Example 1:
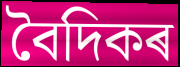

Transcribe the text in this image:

বৈদিকৰ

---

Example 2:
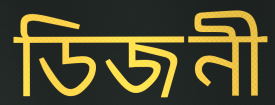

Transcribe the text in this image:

ডিজনী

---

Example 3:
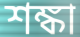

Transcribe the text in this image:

শঙ্কা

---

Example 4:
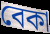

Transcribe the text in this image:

বেকা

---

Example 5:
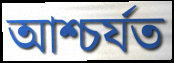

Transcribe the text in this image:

আশ্চৰ্যত